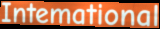
Intemational